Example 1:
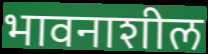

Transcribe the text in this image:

भावनाशील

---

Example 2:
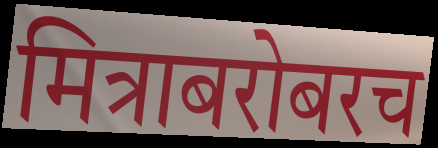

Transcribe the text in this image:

मित्राबरोबरच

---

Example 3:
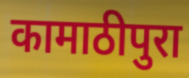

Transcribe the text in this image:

कामाठीपुरा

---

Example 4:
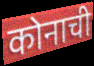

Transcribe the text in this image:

कोनाची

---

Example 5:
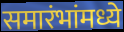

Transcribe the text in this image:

समारंभांमध्ये